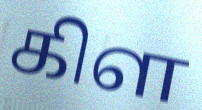
கிள